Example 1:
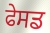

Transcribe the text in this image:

ਫੇਸਡ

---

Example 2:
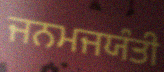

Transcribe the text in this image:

ਜਨਮਜਯੰਤੀ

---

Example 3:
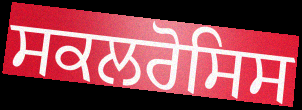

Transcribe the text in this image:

ਸਕਲਰੋਸਿਸ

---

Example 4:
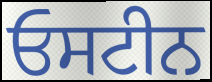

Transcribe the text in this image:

ਓਸਟੀਨ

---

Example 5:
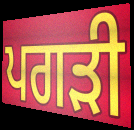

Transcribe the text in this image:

ਪਗੜੀ